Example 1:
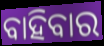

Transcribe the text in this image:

ବାହିବାର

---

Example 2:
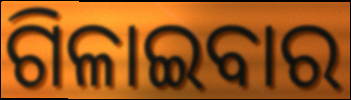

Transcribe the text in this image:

ଗିଳାଇବାର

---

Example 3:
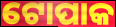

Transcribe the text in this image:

ଟୋପାକ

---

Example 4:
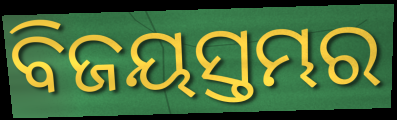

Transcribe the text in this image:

ବିଜୟସ୍ତମ୍ଭର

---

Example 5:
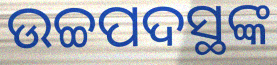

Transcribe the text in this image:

ଉଚ୍ଚପଦସ୍ଥଙ୍କ